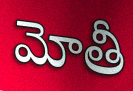
మోతీ